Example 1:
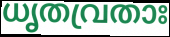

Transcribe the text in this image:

ധൃതവ്രതാഃ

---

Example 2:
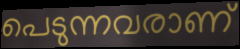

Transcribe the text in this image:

പെടുന്നവരാണ്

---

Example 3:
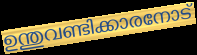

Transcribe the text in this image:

ഉന്തുവണ്ടിക്കാരനോട്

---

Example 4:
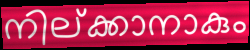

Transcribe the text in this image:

നില്ക്കാനാകും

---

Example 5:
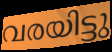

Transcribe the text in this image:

വരയിട്ടു